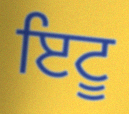
ਇਟੂ